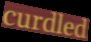
curdled